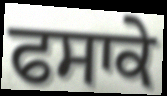
ਫਸਾਕੇ